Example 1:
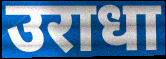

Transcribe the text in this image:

उराधा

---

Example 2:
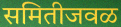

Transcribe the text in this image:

समितीजवळ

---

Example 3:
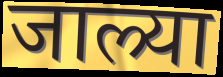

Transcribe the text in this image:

जाल्या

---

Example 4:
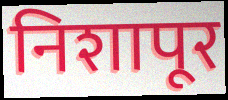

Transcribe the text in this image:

निशापूर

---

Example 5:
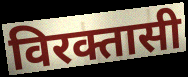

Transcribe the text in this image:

विरक्तासी